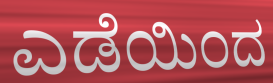
ಎಡೆಯಿಂದ